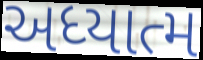
અધ્યાત્મ